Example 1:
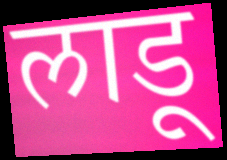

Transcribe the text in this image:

लाडू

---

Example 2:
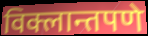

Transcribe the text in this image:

विक्लान्तपणे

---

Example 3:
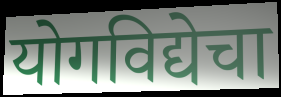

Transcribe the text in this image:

योगविद्येचा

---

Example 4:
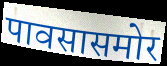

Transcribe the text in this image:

पावसासमोर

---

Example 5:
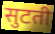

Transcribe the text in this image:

सुटती